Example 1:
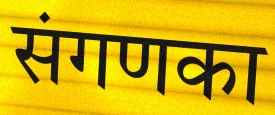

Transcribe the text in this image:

संगणका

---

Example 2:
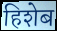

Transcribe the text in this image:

हिशेब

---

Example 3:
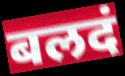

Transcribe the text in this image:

बलदं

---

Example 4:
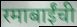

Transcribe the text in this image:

रमाबाईंची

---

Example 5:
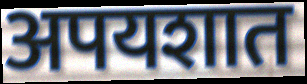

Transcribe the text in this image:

अपयशात